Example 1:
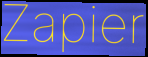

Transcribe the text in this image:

Zapier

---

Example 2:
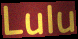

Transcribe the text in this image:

Lulu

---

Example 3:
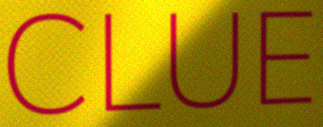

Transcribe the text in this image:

CLUE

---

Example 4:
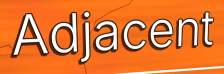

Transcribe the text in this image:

Adjacent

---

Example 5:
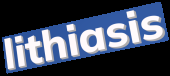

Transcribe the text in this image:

lithiasis